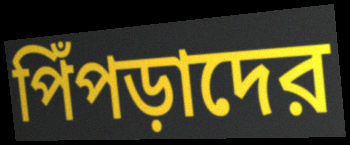
পিঁপড়াদের